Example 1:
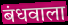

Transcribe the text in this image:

बंधवाला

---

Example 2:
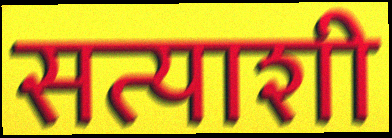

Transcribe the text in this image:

सत्याशी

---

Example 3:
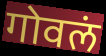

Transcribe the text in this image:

गोवलं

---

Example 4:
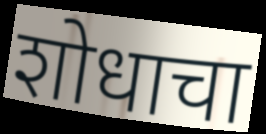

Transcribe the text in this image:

शोधाचा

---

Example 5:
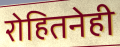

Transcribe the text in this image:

रोहितनेही